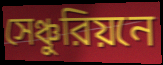
সেঞ্চুরিয়নে